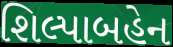
શિલ્પાબહેન